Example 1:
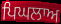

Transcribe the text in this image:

ਪਿਘਲਾਅ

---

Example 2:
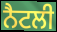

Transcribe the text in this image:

ਨੈਟਲੀ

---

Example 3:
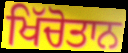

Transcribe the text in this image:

ਖਿੱਚੋਤਾਨ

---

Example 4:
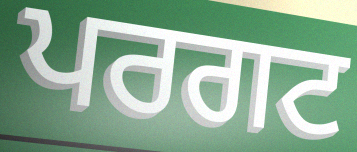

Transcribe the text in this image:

ਪਰਗਟ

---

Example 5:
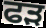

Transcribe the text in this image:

ਫੜ